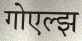
गोएल्झ